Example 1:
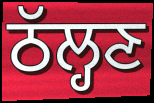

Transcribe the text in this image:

ਠੱਲ੍ਹਣ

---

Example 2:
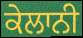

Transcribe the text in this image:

ਕੇਲਾਨੀ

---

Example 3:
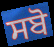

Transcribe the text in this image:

ਸਬੋ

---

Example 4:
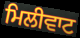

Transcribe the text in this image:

ਮਿਲੀਵਾਟ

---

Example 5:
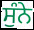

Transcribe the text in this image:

ਸੁੰਨੇ